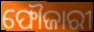
ଫୌଜାରୀ